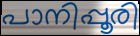
പാനിപ്പൂരി